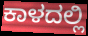
ಕಾಳದಲ್ಲಿ